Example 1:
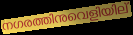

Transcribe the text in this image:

നഗരത്തിനുവെളിയില്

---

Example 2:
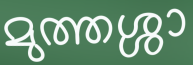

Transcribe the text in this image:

മുത്തശ്ശാ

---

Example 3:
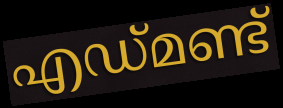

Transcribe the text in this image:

എഡ്മണ്ട്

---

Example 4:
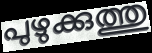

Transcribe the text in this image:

പുഴുക്കുത്തു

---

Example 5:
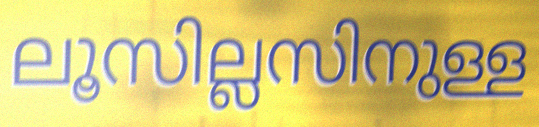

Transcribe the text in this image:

ലൂസില്ലസിനുള്ള